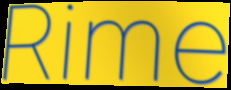
Rime